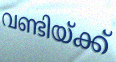
വണ്ടിയ്ക്ക്